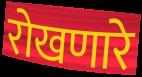
रोखणारे